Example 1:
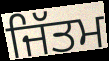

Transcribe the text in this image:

ਜਿੱਤਮ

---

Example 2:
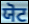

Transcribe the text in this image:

ਯੋਟ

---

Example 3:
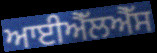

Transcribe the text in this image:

ਆਈਐੱਲਐੱਸ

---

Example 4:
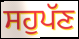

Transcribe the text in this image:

ਸਹੁਪੱਣ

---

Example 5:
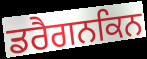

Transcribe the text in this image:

ਡਰੈਗਨਕਿਨ